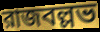
রাজবল্লভ